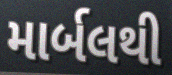
માર્બલથી